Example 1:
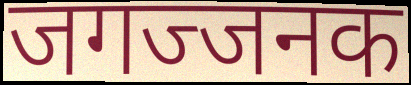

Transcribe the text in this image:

जगज्जनक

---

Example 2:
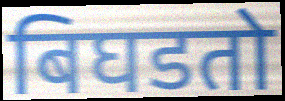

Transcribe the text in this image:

बिघडतो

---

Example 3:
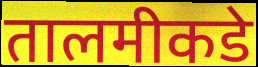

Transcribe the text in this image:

तालमीकडे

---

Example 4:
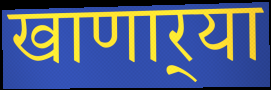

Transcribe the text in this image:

खाणार्या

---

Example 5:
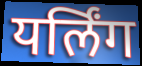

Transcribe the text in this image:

यर्लिंग